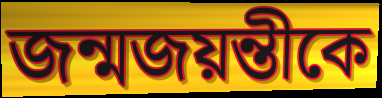
জন্মজয়ন্তীকে